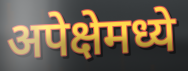
अपेक्षेमध्ये